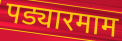
पड्यारमाम